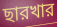
ছারখার